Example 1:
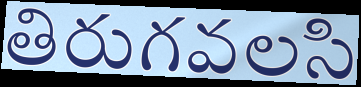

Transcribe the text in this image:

తిరుగవలసి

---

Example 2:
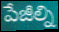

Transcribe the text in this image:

పేజీల్ని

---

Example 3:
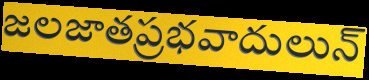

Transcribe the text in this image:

జలజాతప్రభవాదులున్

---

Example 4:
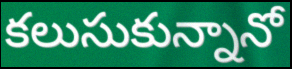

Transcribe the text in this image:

కలుసుకున్నానో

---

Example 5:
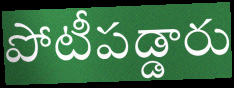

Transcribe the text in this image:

పోటీపడ్డారు